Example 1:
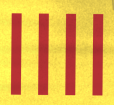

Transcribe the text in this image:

llll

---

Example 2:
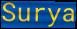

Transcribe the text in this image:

Surya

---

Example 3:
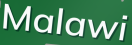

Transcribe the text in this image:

Malawi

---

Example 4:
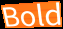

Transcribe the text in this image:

Bold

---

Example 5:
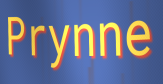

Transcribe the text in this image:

Prynne